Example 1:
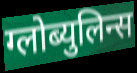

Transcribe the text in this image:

ग्लोब्युलिन्स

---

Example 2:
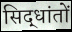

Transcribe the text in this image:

सिद्धांतों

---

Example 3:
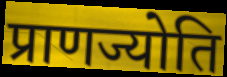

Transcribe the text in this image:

प्राणज्योति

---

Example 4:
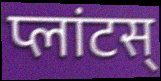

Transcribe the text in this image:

प्लांटस्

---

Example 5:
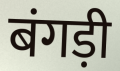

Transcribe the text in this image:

बंगड़ी